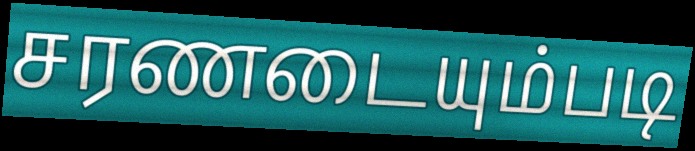
சரணடையும்படி